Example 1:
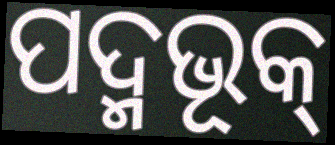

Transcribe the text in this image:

ପଦ୍ମଭୂକ୍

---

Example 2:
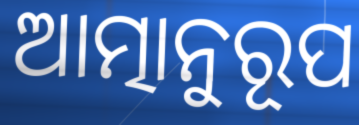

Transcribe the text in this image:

ଆତ୍ମାନୁରୂପ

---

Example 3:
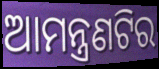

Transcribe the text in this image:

ଆମନ୍ତ୍ରଣଟିର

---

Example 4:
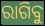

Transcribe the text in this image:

ରାଗିବୁ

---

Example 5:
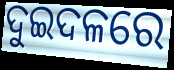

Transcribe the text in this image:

ଦୁଇଦଳରେ